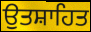
ਉੁਤਸ਼ਾਹਿਤ